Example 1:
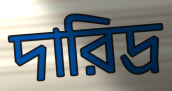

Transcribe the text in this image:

দারিদ্র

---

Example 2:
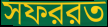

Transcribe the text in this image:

সফররত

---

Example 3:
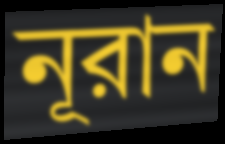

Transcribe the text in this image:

নূরান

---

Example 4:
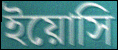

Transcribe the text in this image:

ইয়োসি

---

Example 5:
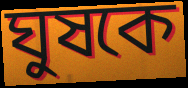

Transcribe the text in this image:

ঘুষকে